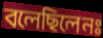
বলেছিলেনঃ